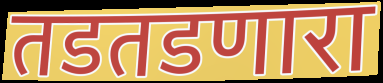
तडतडणारा